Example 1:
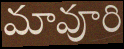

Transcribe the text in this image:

మావూరి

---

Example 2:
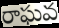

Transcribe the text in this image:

రాఘవ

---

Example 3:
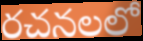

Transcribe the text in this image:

రచనలలో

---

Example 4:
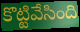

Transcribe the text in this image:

కొట్టివేసింది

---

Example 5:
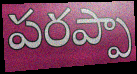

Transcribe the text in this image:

పరప్పా